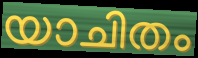
യാചിതം